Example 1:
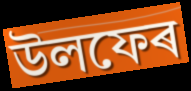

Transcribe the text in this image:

উলফেৰ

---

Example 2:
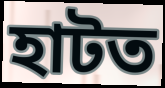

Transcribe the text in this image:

হাটত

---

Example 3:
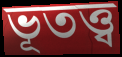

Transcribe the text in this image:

ভূতত্ত্ব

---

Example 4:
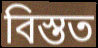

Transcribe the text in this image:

বিস্তত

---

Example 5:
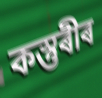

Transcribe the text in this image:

কস্তুৰীৰ